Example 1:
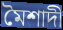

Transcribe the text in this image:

মৈশাদী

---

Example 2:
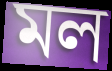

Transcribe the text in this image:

মল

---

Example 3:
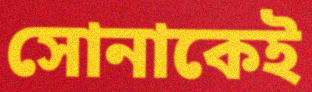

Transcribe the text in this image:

সোনাকেই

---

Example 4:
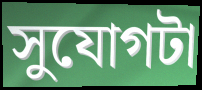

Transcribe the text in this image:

সুযোগটা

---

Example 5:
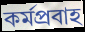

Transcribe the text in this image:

কর্মপ্রবাহ